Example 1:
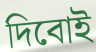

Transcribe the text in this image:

দিবোই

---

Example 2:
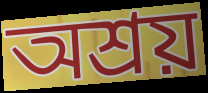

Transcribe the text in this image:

অশ্রয়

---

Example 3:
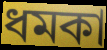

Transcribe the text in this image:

ধমকা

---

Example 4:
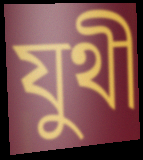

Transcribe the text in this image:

যুথী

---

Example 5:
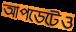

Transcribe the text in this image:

আপডেটেও